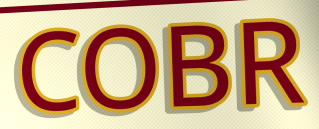
COBR